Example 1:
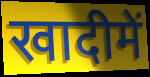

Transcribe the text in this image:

खादीमें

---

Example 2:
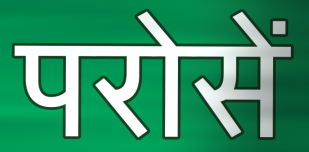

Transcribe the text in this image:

परोसें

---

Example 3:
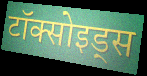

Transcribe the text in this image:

टॉक्सोइड्स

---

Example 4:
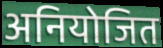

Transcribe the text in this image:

अनियोजित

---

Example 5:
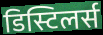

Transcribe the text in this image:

डिस्टिलर्स